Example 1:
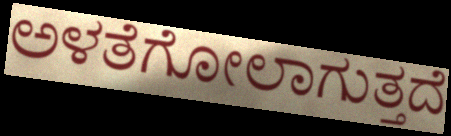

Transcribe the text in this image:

ಅಳತೆಗೋಲಾಗುತ್ತದೆ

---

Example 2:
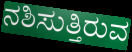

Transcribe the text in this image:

ನಶಿಸುತ್ತಿರುವ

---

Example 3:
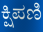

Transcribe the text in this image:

ಕ್ಷಿಪಣಿ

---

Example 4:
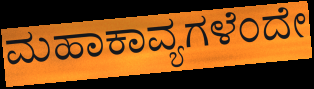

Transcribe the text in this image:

ಮಹಾಕಾವ್ಯಗಳೆಂದೇ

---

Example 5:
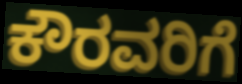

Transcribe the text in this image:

ಕೌರವರಿಗೆ